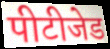
पीटीजेड